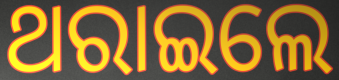
ଥରାଇଲେ